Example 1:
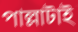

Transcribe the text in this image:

পাল্লাটাই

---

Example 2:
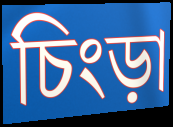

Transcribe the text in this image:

চিংড়া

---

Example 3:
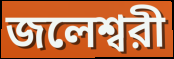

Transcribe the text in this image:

জলেশ্বরী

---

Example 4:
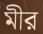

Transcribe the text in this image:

মীর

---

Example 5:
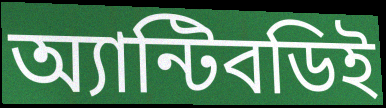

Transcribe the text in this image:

অ্যান্টিবডিই